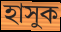
হাসুক